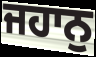
ਜਹਾਨੁ